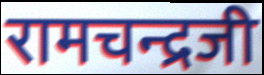
रामचन्द्रजी